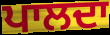
ਪਾਲਦਾ